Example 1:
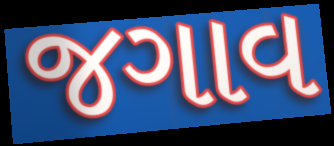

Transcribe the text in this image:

જગાવ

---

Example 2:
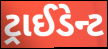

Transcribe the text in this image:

ટ્રાઈડેન્ટ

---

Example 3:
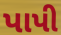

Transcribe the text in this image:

પાપી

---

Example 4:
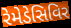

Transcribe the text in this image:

રેમેડેસિવિર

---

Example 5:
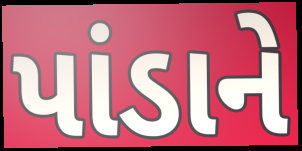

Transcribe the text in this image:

પાંડાને